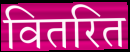
वितरित